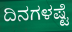
ದಿನಗಳಷ್ಟೆ